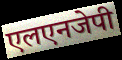
एलएनजेपी